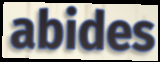
abides